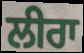
ਲੀਰਾ